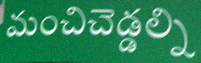
మంచిచెడ్డల్ని